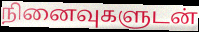
நினைவுகளுடன்